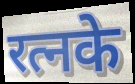
रत्नके